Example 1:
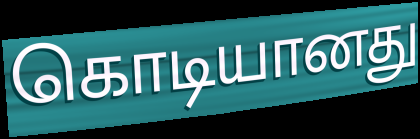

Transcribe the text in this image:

கொடியானது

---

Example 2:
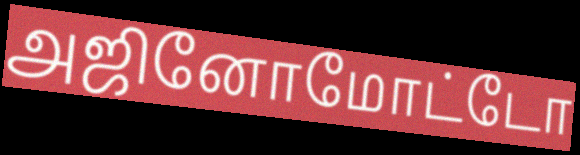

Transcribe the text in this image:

அஜினோமோட்டோ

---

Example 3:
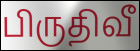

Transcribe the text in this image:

பிருதிவீ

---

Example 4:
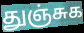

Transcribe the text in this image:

துஞ்சுக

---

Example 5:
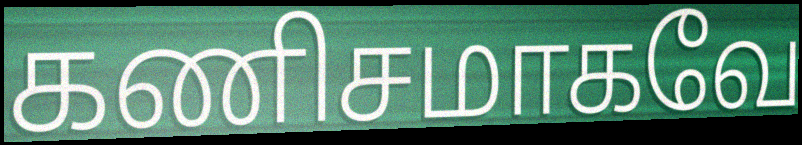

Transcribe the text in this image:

கணிசமாகவே